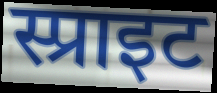
स्प्राइट